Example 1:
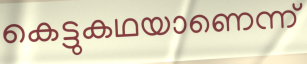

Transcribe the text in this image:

കെട്ടുകഥയാണെന്ന്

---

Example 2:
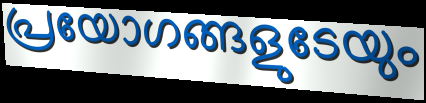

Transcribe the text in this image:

പ്രയോഗങ്ങളുടേയും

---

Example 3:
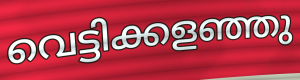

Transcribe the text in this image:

വെട്ടിക്കളഞ്ഞു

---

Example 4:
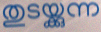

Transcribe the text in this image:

തുടയ്ക്കുന്ന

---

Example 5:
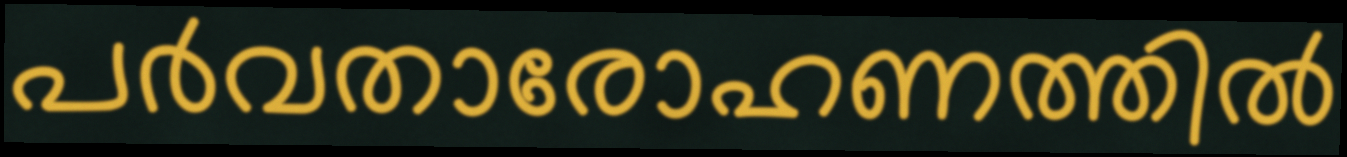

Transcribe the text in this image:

പർവതാരോഹണത്തിൽ